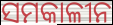
ସମକାଳୀନ